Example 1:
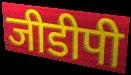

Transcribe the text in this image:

जीडीपी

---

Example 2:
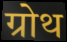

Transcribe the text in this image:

ग्रोथ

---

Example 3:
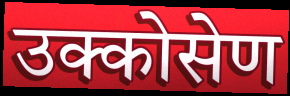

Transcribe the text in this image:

उक्कोसेण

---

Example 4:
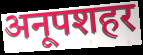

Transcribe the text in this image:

अनूपशहर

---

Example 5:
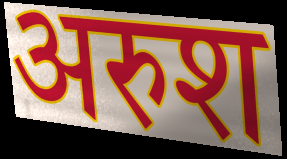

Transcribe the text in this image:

अरुश